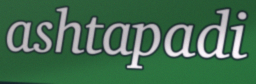
ashtapadi